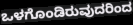
ಒಳಗೊಂಡಿರುವುದರಿಂದ